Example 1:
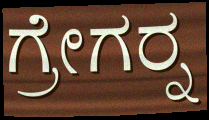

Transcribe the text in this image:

ಗ್ರೇಗರ್‍ನ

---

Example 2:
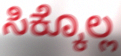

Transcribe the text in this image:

ಸಿಕ್ಕೊಲ್ಲ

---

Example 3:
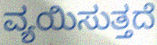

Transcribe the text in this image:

ವ್ಯಯಿಸುತ್ತದೆ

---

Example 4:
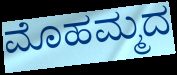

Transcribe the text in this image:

ಮೊಹಮ್ಮದ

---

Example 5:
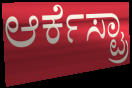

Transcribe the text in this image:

ಆರ್ಕೆಸ್ಟ್ರಾ